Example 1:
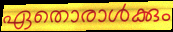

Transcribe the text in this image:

ഏതൊരാൾക്കും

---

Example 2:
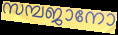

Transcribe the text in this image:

സമ്പജാനോ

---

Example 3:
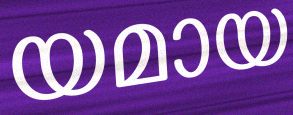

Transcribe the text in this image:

യമായ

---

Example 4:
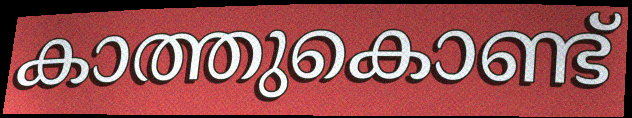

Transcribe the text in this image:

കാത്തുകൊണ്ട്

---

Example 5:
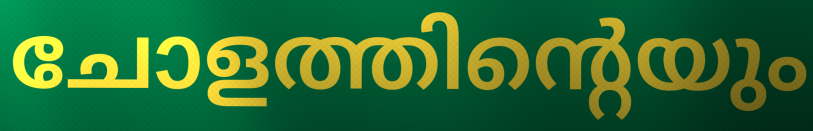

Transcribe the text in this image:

ചോളത്തിന്റെയും